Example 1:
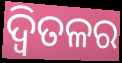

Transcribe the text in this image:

ଦ୍ୱିତଳର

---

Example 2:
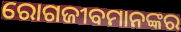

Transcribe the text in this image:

ରୋଗଜୀବମାନଙ୍କର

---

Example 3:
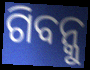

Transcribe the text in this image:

ଗିବନ୍କୁ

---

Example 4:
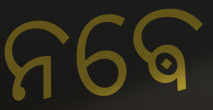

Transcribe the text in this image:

ନଵେ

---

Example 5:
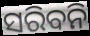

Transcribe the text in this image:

ସରିବନି